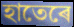
হাতেৰে